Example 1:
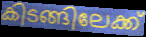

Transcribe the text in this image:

കിടങ്ങിലേക്ക്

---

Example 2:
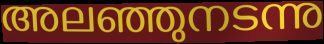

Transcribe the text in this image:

അലഞ്ഞുനടന്നു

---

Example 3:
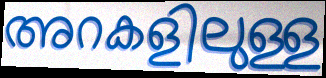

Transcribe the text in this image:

അറകളിലുള്ള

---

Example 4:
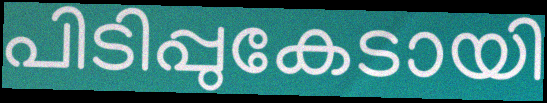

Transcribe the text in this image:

പിടിപ്പുകേടായി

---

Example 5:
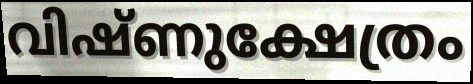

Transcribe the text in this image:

വിഷ്ണുക്ഷേത്രം